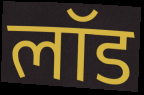
लॉड